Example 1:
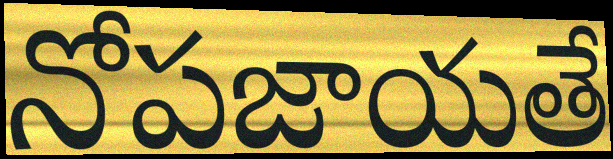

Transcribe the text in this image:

నోపజాయతే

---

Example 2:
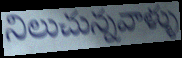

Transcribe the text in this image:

నిలుచున్నవాళ్ళు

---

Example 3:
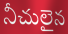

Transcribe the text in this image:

నీచులైన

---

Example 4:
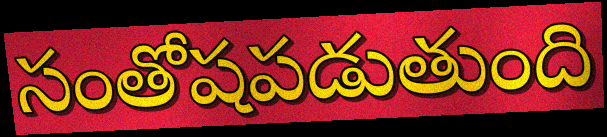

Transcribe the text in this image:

సంతోషపడుతుంది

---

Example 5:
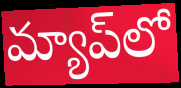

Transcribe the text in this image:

మ్యాప్‌లో